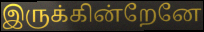
இருக்கின்றேனே